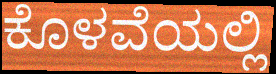
ಕೊಳವೆಯಲ್ಲಿ